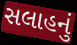
સલાહનું